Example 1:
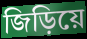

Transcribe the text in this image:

জিড়িয়ে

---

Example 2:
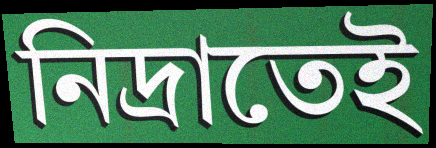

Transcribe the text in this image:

নিদ্রাতেই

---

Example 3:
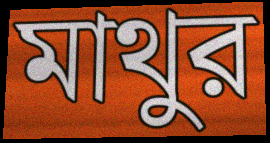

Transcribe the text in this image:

মাথুর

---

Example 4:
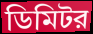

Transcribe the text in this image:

ডিমিটর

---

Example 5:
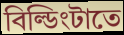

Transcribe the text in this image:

বিল্ডিংটাতে